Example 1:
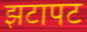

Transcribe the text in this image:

झटापट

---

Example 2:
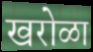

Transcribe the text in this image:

खरोळा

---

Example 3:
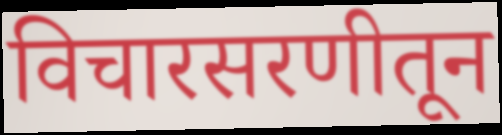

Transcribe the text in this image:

विचारसरणीतून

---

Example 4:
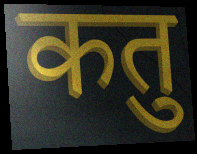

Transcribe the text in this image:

कतु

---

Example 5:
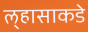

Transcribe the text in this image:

ल्हासाकडे